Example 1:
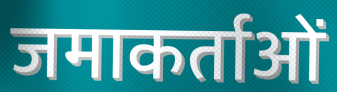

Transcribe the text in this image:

जमाकर्ताओं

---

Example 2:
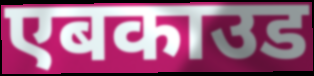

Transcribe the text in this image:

एबकाउड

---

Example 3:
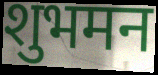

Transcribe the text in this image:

शुभमन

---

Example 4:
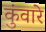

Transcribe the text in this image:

कुंवारे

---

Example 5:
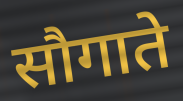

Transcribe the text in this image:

सौगाते